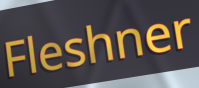
Fleshner